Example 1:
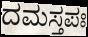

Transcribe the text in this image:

ದಮಸ್ತಪಃ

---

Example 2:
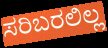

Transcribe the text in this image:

ಸರಿಬರಲಿಲ್ಲ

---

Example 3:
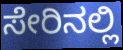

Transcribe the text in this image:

ಸೇರಿನಲ್ಲಿ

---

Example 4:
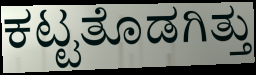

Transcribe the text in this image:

ಕಟ್ಟತೊಡಗಿತ್ತು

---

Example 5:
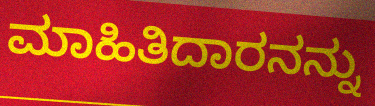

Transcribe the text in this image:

ಮಾಹಿತಿದಾರನನ್ನು